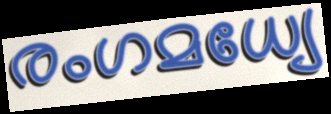
രംഗമധ്യേ